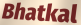
Bhatkal